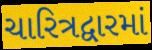
ચારિત્રદ્વારમાં